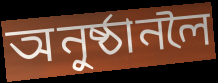
অনুষ্ঠানলৈ